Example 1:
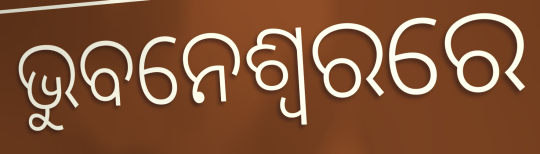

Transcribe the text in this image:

ଭୁବନେଶ୍ଵରରେ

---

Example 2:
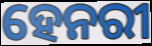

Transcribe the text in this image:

ହେନରୀ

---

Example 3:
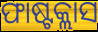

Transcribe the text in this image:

ଫାଷ୍ଟକ୍ଲାସ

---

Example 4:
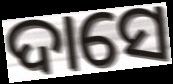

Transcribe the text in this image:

ଦାସେ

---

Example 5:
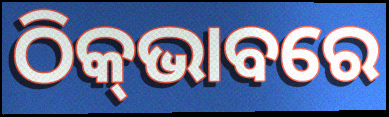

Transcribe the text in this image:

ଠିକ୍‌ଭାବରେ